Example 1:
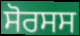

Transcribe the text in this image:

ਸੋਰਸਸ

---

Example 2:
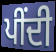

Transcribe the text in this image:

ਪੀਂਦੀ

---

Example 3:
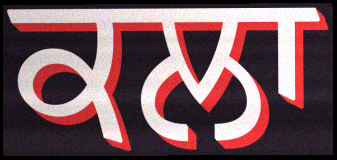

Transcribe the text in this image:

ਕਲਾ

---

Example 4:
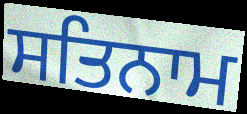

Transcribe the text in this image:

ਸਤਿਨਾਮ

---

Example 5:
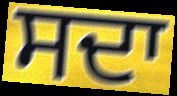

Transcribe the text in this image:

ਸਦਾ